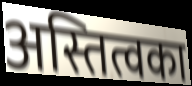
अस्तित्वका